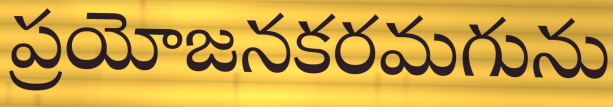
ప్రయోజనకరమగును